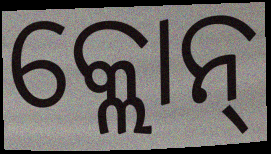
କ୍ଲୋନ୍